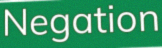
Negation